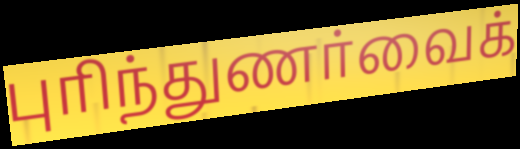
புரிந்துணர்வைக்